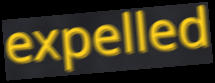
expelled